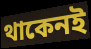
থাকেনই